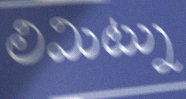
లిమిట్ను